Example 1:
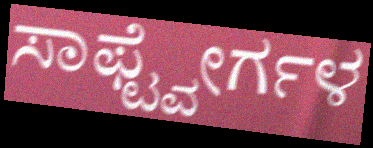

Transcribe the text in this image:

ಸಾಫ್ಟ್ವೇರ್ಗಳ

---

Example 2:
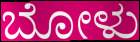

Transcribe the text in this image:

ಬೋಳು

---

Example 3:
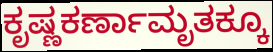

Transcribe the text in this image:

ಕೃಷ್ಣಕರ್ಣಾಮೃತಕ್ಕೂ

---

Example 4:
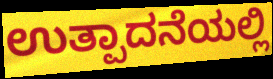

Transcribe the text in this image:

ಉತ್ಪಾದನೆಯಲ್ಲಿ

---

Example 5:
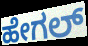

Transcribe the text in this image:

ಹೇಗಲ್